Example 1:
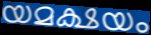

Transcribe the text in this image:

യമക്ഷയം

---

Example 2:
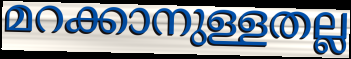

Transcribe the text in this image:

മറക്കാനുള്ളതല്ല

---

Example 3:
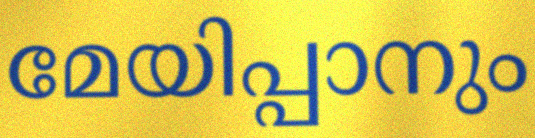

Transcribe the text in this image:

മേയിപ്പാനും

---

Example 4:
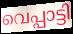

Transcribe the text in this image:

വെപ്പാട്ടി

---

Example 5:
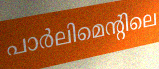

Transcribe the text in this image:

പാർലിമെന്റിലെ